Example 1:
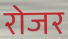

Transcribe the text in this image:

रोजर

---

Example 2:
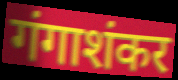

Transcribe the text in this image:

गंगाशंकर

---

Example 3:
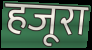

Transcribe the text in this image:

हजूरा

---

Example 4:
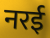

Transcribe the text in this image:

नरई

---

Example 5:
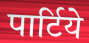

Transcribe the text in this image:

पार्टिये